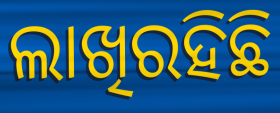
ଲାଖିରହିଛି